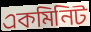
একমিনিট